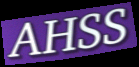
AHSS